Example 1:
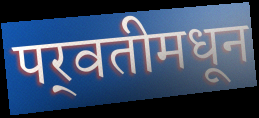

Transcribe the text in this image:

पर्वतीमधून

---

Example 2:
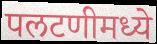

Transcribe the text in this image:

पलटणीमध्ये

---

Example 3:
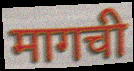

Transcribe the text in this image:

मागची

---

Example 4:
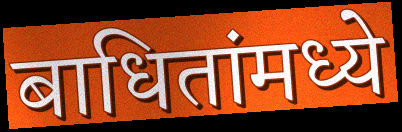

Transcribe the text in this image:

बाधितांमध्ये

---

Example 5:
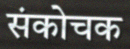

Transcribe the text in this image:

संकोचक